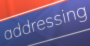
addressing